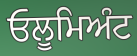
ਓਲੂਮਿਅੰਟ